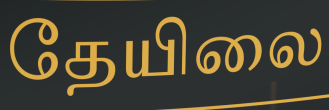
தேயிலை